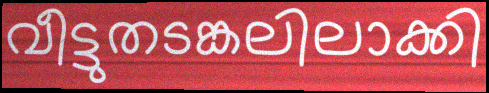
വീട്ടുതടങ്കലിലാക്കി